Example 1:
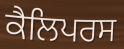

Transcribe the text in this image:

ਕੈਲਿਪਰਸ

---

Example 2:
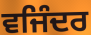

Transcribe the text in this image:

ਵਜਿੰਦਰ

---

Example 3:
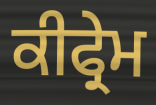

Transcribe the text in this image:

ਕੀਫ੍ਰੇਮ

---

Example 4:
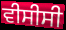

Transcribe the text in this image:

ਵੀਸੀਸੀ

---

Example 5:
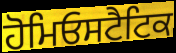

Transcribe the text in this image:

ਹੋਮਿਓਸਟੈਟਿਕ